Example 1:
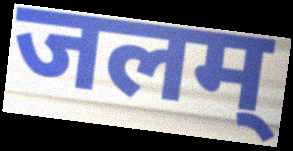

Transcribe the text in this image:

जलम्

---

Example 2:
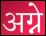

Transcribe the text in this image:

अग्ने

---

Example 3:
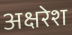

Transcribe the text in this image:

अक्षरेश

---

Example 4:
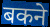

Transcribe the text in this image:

बकने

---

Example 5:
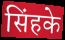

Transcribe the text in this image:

सिंहके